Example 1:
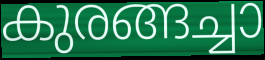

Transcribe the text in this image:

കുരങ്ങച്ചാ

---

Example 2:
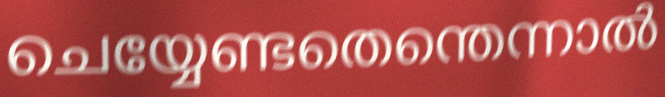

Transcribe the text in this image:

ചെയ്യേണ്ടതെന്തെന്നാൽ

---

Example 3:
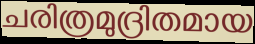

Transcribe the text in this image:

ചരിത്രമുദ്രിതമായ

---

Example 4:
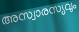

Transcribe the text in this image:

അസ്വാരസ്യവും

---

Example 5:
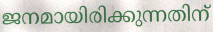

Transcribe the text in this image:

ജനമായിരിക്കുന്നതിന്